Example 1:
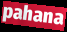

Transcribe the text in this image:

pahana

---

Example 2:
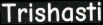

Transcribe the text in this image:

Trishasti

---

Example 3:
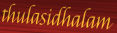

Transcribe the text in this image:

thulasidhalam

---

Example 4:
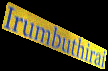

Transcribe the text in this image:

Irumbuthirai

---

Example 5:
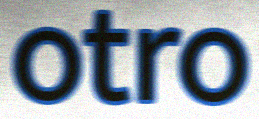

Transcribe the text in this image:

otro